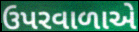
ઉપરવાળાએ